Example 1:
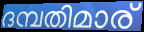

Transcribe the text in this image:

ദമ്പതിമാര്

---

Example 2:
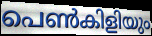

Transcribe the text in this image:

പെൺകിളിയും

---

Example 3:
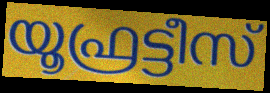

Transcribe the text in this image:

യൂഫ്രട്ടീസ്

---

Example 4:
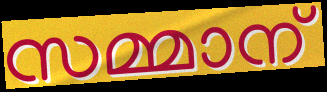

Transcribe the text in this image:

സമ്മാന്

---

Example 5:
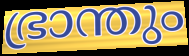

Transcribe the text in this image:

ഭ്രാന്തും